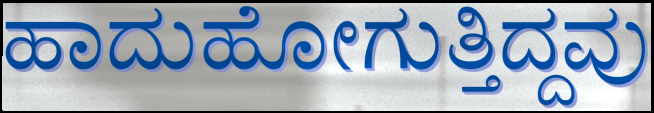
ಹಾದುಹೋಗುತ್ತಿದ್ದವು